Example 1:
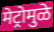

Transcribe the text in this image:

मेट्रोमुळे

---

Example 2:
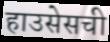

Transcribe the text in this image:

हाउसेसची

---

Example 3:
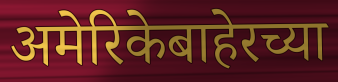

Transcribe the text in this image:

अमेरिकेबाहेरच्या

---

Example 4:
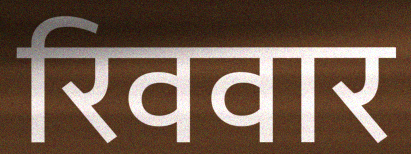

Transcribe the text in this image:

रिववार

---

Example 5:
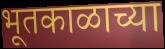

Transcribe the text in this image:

भूतकाळाच्या